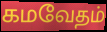
கமவேதம்